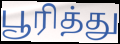
பூரித்து